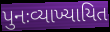
પુનઃવ્યાખ્યાયિત